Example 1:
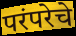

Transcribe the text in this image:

परंपरेचे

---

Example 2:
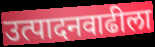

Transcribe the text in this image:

उत्पादनवाढीला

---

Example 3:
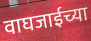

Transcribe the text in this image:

वाघजाईच्या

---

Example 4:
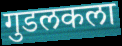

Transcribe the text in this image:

गुडलकला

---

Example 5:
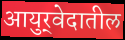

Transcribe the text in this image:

आयुर्वेदातील